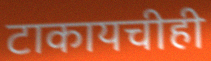
टाकायचीही